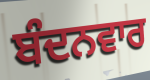
ਬੰਦਨਵਾਰ